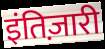
इंतिज़ारी